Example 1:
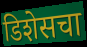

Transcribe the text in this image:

डिशेसचा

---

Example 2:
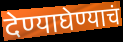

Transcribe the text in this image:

देण्याघेण्याचं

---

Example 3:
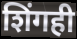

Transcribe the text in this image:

शिंगही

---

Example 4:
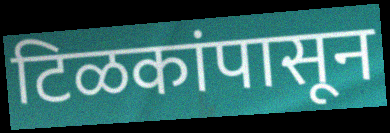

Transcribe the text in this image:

टिळकांपासून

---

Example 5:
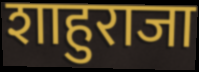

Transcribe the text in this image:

शाहुराजा